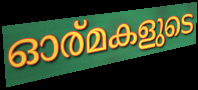
ഓര്മകളുടെ